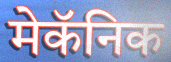
मेकॅनिक